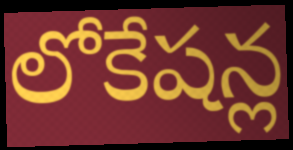
లోకేషన్ల